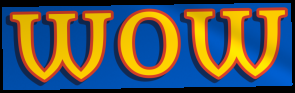
wow